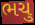
ભચુ